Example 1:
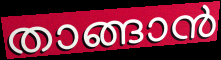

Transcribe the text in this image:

താങ്ങാൻ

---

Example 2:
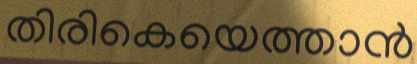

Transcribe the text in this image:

തിരികെയെത്താൻ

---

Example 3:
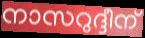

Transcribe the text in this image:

നാസറുദ്ദീന്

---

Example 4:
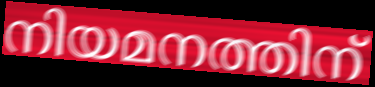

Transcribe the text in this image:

നിയമനത്തിന്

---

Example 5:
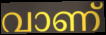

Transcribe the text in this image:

വാണ്